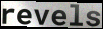
revels